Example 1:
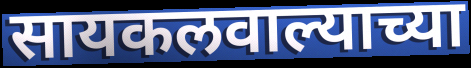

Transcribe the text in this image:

सायकलवाल्याच्या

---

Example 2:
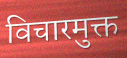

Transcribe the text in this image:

विचारमुक्त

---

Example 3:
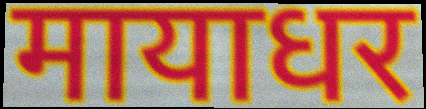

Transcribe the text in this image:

मायाधर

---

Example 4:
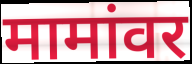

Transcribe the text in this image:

मामांवर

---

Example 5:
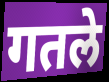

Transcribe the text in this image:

गतले